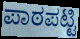
ಪಾಠಪಟ್ಟಿ